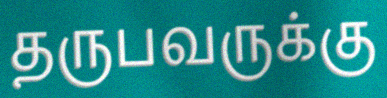
தருபவருக்கு